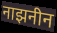
नाझनीन